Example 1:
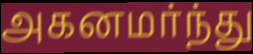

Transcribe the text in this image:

அகனமர்ந்து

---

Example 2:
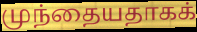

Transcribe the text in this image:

முந்தையதாகக்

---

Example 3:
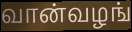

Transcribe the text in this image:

வான்வழங்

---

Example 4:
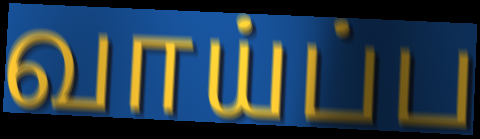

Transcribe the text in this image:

வாய்ப்ப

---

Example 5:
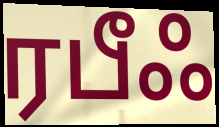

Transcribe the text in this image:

ரபீஃ